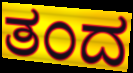
ತಂದ